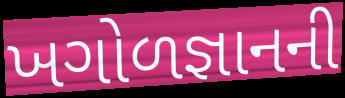
ખગોળજ્ઞાનની